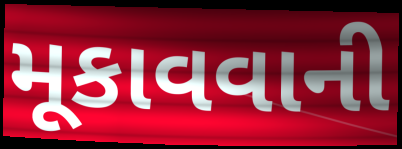
મૂકાવવાની